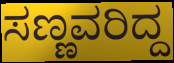
ಸಣ್ಣವರಿದ್ದ